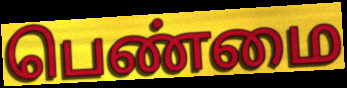
பெண்மை